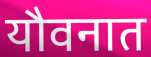
यौवनात